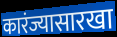
कारंज्यासारखा